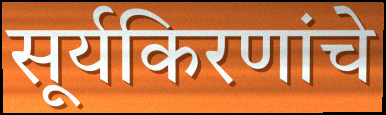
सूर्यकिरणांचे